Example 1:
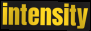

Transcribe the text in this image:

intensity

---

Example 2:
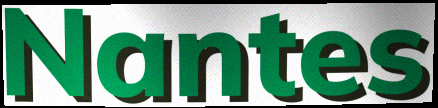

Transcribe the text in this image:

Nantes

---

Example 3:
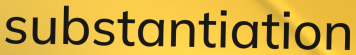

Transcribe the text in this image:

substantiation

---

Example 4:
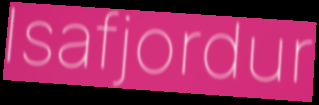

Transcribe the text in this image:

Isafjordur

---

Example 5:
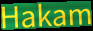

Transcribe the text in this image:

Hakam